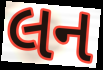
લન